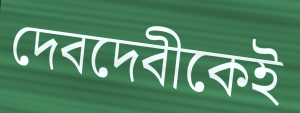
দেবদেবীকেই